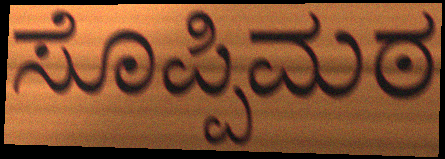
ಸೊಪ್ಪಿಮಠ